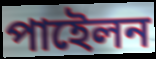
পাইেলন